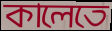
কালেতে